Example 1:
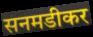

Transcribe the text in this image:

सनमडीकर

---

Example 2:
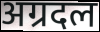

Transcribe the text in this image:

अग्रदल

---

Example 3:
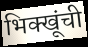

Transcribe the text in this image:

भिक्खूंची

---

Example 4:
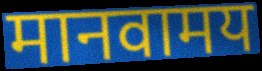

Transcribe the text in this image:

मानवामय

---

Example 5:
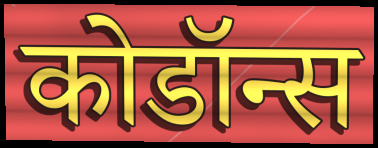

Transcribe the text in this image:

कोडॉन्स